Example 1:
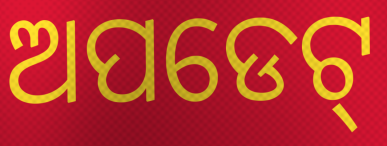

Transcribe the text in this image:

ଅପଡେଟ୍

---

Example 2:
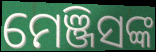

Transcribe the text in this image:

ମେଞ୍ଜିସଙ୍କ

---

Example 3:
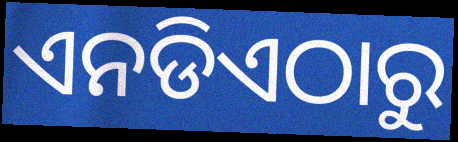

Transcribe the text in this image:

ଏନଡିଏଠାରୁ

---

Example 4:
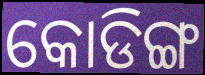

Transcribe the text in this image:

କୋଡିଙ୍ଗ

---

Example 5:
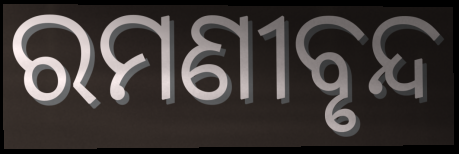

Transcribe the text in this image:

ରମଣୀବୃନ୍ଦ